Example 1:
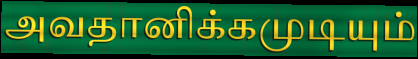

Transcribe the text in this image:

அவதானிக்கமுடியும்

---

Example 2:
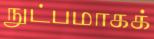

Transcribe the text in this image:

நுட்பமாகக்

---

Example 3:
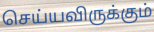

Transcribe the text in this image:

செய்யவிருக்கும்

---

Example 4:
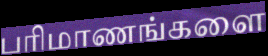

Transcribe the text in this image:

பரிமாணங்களை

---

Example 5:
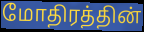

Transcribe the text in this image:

மோதிரத்தின்